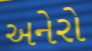
અનેરો